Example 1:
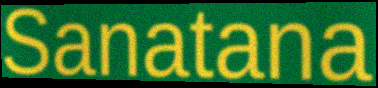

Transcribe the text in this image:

Sanatana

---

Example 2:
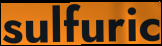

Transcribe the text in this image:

sulfuric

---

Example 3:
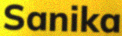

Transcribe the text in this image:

Sanika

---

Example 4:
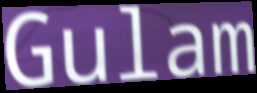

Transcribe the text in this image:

Gulam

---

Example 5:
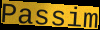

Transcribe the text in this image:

Passim